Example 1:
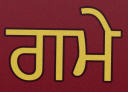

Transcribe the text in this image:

ਗਮੇ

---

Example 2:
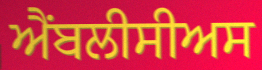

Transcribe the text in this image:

ਐਂਬਲੀਸੀਅਸ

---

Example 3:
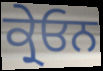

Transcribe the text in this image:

ਕ੍ਰੇਓਨ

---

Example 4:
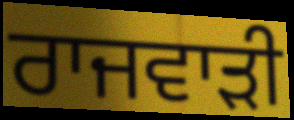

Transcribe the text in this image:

ਰਾਜਵਾੜੀ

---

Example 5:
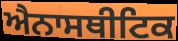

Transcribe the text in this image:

ਐਨਾਸਥੀਟਿਕ